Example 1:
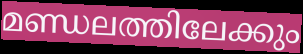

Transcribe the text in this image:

മണ്ഡലത്തിലേക്കും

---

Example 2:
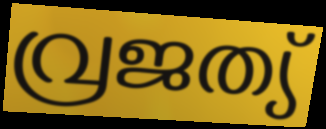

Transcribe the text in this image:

വ്രജത്യ്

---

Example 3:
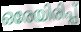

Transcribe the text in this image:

ഒരേയിരിപ്പ്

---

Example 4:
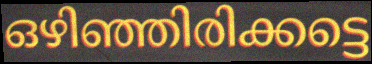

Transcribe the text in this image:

ഒഴിഞ്ഞിരിക്കട്ടെ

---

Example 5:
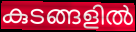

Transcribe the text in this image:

കുടങ്ങളിൽ